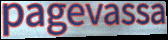
pagevassa